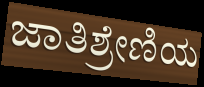
ಜಾತಿಶ್ರೇಣಿಯ